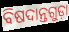
ବିଷଦାନ୍ତଗୁଡ଼ା